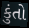
કુંતો